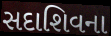
સદાશિવના